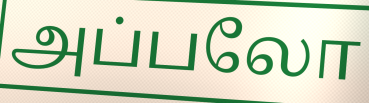
அப்பலோ